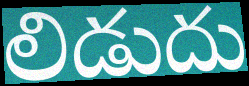
లిడుదు